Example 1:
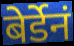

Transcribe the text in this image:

बेर्डेनं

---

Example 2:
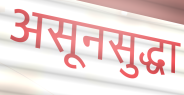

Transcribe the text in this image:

असूनसुद्धा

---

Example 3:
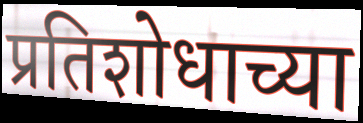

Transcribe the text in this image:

प्रतिशोधाच्या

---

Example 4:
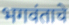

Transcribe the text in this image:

भगवंताचे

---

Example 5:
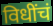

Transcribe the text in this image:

विधींचं